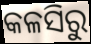
କଳସିରୁ